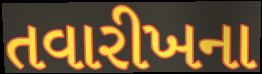
તવારીખના